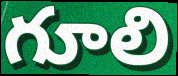
గూలి